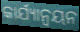
କାର୍ଯ୍ୟାନ୍ୱୟନ